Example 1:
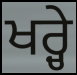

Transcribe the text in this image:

ਖਰ੍ਚੇ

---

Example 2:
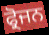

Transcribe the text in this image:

ਫ੍ਰੋਜਨ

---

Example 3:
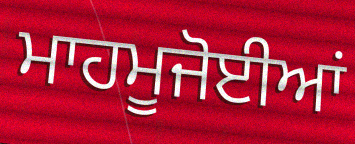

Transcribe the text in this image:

ਮਾਹਮੂਜੋਈਆਂ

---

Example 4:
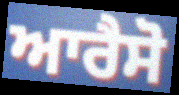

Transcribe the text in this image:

ਆਰੈਸੋ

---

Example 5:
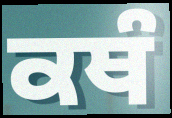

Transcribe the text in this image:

ਕਥੰ